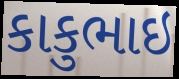
કાકુભાઇ